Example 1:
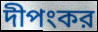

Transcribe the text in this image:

দীপংকর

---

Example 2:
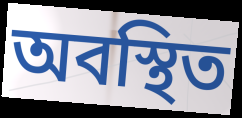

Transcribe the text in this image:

অবস্থিত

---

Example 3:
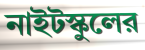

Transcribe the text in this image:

নাইটস্কুলের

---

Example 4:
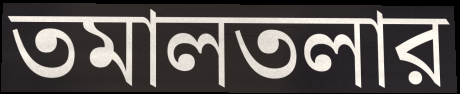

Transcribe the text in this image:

তমালতলার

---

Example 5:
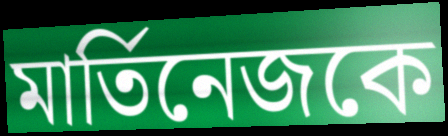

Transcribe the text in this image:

মার্তিনেজকে